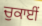
ਚੁਕਾਈਂ